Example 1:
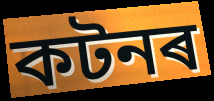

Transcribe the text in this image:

কটনৰ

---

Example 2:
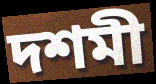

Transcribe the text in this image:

দশমী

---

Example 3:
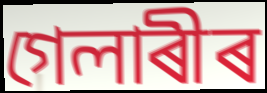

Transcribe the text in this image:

গেলাৰীৰ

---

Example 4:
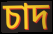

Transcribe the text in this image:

চাদ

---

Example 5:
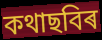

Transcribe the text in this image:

কথাছবিৰ